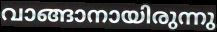
വാങ്ങാനായിരുന്നു